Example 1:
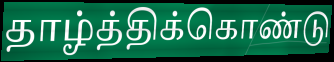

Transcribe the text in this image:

தாழ்த்திக்கொண்டு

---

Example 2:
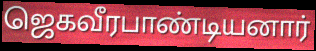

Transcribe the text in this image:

ஜெகவீரபாண்டியனார்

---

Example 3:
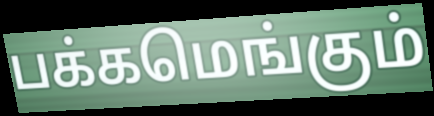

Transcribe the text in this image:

பக்கமெங்கும்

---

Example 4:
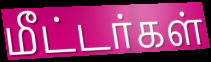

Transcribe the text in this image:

மீட்டர்கள்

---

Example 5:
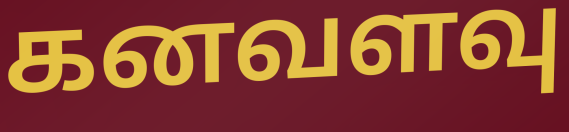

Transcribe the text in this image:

கனவளவு